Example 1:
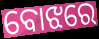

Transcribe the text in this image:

ବୋଝରେ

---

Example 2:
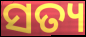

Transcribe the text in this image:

ସତ୍ୟ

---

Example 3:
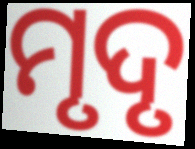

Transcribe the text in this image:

ମୃଦୃ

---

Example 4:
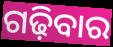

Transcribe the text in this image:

ଗଢ଼ିବାର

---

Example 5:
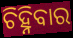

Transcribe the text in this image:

ଚିହ୍ନିବାର